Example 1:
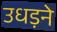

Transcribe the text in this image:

उधड़ने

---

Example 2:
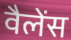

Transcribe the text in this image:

वैलेंस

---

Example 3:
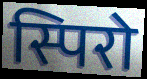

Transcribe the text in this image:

स्पिरो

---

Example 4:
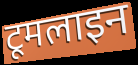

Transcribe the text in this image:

टूमलाइन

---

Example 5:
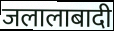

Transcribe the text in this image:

जलालाबादी